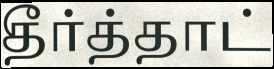
தீர்த்தாட்